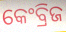
କେଂବ୍ରିଜ